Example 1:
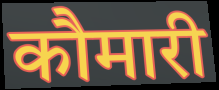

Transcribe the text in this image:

कौमारी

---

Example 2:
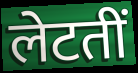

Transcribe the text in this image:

लेटतीं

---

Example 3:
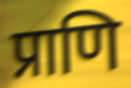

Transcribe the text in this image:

प्राणि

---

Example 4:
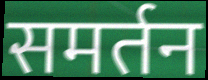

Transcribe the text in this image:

समर्तन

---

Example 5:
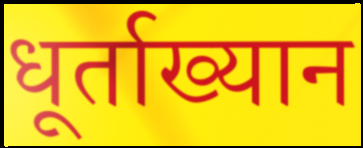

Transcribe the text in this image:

धूर्ताख्यान